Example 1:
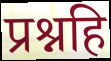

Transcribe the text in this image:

प्रश्नहि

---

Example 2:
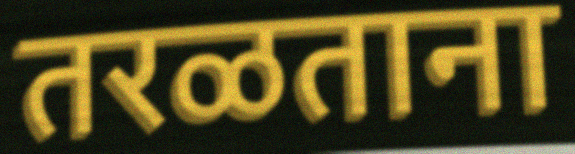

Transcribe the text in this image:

तरळताना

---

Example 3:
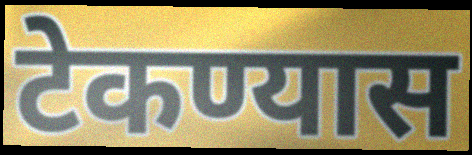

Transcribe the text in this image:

टेकण्यास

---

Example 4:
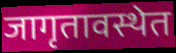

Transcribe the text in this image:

जागृतावस्थेत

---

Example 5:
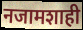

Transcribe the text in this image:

नजामशाही